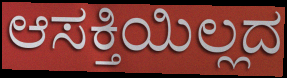
ಆಸಕ್ತಿಯಿಲ್ಲದ